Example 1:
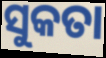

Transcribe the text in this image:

ସୁକତା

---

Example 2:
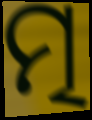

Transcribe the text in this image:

ତ୍ମ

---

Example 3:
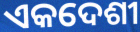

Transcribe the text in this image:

ଏକଦେଶୀ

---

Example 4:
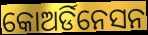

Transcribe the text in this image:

କୋଅର୍ଡିନେସନ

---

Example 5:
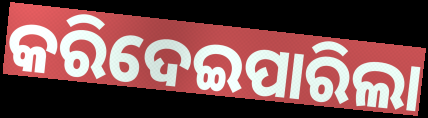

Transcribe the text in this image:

କରିଦେଇପାରିଲା